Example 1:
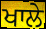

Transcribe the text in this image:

ਖਾਲੇ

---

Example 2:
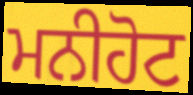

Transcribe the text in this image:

ਮਨੀਹੋਟ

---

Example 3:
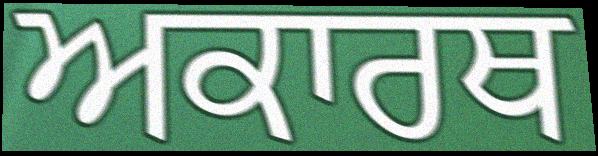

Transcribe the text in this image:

ਅਕਾਰਥ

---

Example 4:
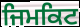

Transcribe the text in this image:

ਜਿਮਕਿਟ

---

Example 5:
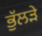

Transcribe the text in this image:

ਭੁੱਲੜੇ